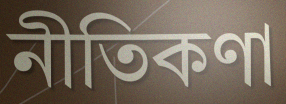
নীতিকণা